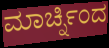
ಮಾರ್ಚ್ನಿಂದ